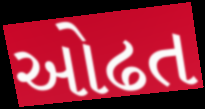
ઓઢત